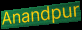
Anandpur